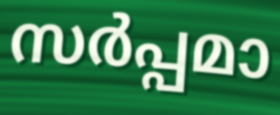
സർപ്പമാ